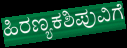
ಹಿರಣ್ಯಕಶಿಪುವಿಗೆ